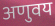
अणुवय